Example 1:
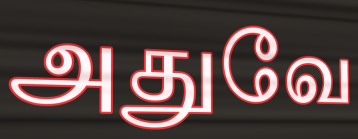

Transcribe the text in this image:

அதுவே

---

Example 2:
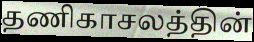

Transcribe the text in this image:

தணிகாசலத்தின்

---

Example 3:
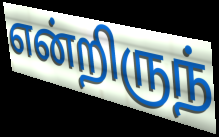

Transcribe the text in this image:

என்றிருந்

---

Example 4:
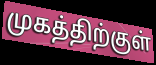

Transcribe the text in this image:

முகத்திற்குள்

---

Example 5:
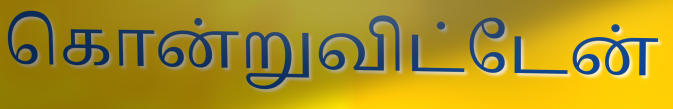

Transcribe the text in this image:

கொன்றுவிட்டேன்